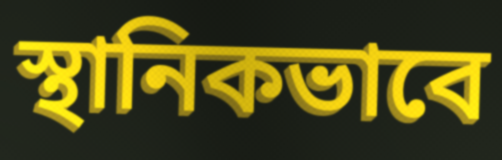
স্থানিকভাবে